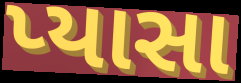
પ્યાસા